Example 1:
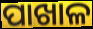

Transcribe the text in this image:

ପାଖାଳ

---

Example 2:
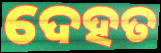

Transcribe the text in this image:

ଦେହତ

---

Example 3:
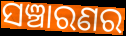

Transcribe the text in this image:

ସଞ୍ଚାରଣର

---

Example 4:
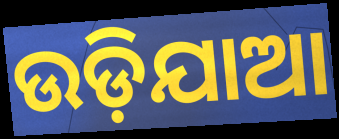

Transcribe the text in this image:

ଉଡ଼ିଯାଆ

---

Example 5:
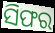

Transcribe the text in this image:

ସିଫର